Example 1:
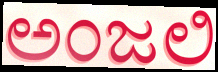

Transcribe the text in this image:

ಅಂಜಲಿ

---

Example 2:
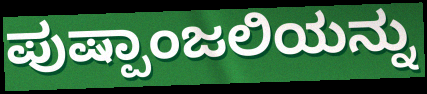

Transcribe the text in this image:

ಪುಷ್ಪಾಂಜಲಿಯನ್ನು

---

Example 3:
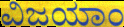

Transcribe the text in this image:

ವಿಜಯಾಂ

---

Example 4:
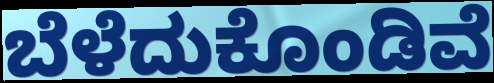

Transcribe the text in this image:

ಬೆಳೆದುಕೊಂಡಿವೆ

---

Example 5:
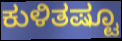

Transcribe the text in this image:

ಕುಳಿತಷ್ಟೂ